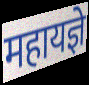
महायज्ञे